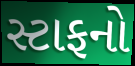
સ્ટાફનો